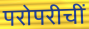
परोपरीचीं